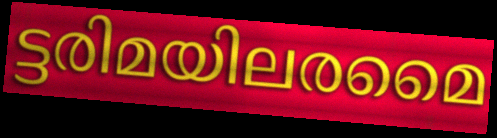
ട്ടരിമയിലരമൈ